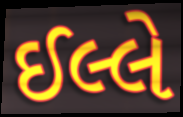
ઈલ્લે